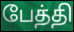
பேத்தி